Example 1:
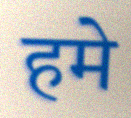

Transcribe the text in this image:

हमे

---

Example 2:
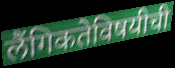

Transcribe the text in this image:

लैंगिकतेविषयीची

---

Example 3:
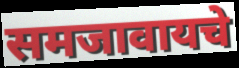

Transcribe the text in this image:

समजावायचे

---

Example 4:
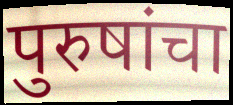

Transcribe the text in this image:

पुरुषांचा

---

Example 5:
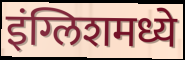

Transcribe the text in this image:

इंग्लिशमध्ये